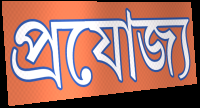
প্রযোজ্য